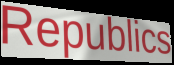
Republics